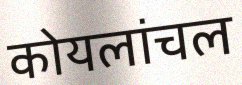
कोयलांचल